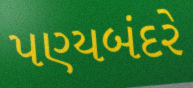
પણ્યબંદરે